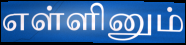
எள்ளினும்